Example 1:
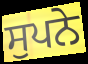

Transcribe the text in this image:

ਸੁਪਨੇ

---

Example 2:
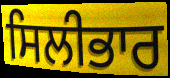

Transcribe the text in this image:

ਸਿਲੀਭਾਰ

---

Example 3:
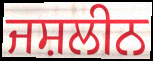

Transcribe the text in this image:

ਜਸ਼ਲੀਨ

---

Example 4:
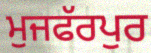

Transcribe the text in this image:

ਮੁਜਫੱਰਪੁਰ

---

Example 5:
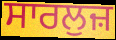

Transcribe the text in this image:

ਸਾਰਲੁਜ਼